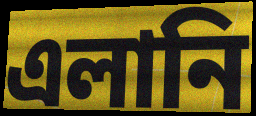
এলানি